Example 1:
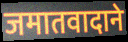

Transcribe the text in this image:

जमातवादाने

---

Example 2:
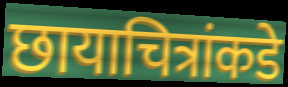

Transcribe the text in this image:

छायाचित्रांकडे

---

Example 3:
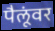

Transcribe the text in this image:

पैलूंवर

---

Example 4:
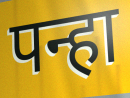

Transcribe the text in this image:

पन्हा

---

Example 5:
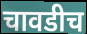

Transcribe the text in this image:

चावडीच